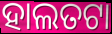
ହାଲତଟା